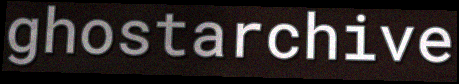
ghostarchive